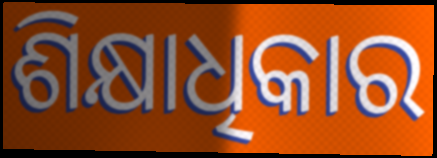
ଶିକ୍ଷାଧିକାର